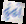
ઢુંઢો